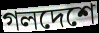
গলদেশে